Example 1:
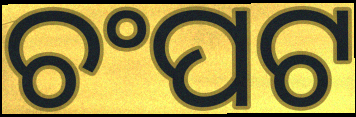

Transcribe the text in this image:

ଚଂପଟ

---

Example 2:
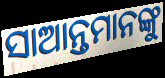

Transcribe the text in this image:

ସାଆନ୍ତମାନଙ୍କୁ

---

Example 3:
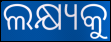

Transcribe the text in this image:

ଲକ୍ଷ୍ୟକୁ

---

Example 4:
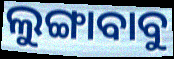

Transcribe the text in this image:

ଲୁଙ୍ଗାବାବୁ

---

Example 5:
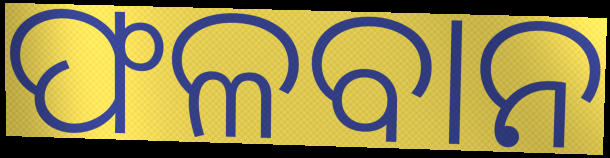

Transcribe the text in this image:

ଫଳବାନ